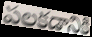
పలకడానికి